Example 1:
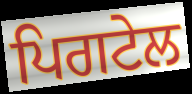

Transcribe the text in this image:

ਪਿਗਟੇਲ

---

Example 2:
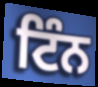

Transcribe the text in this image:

ਟਿੰਨ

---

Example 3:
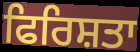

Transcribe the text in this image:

ਫਿਰਿਸ਼ਤਾ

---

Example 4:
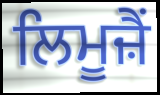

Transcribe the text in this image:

ਲਿਮੂਜ਼ੈਂ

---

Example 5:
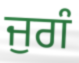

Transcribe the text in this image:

ਜੁਗੰ